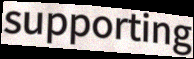
supporting